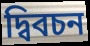
দ্বিবচন